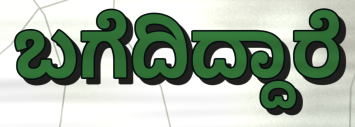
ಬಗೆದಿದ್ದಾರೆ